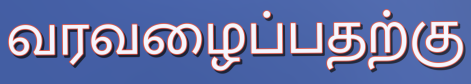
வரவழைப்பதற்கு